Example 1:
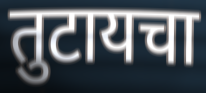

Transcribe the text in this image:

तुटायचा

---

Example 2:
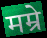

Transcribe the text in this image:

मम्रे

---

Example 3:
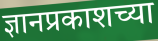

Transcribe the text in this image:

ज्ञानप्रकाशच्या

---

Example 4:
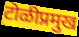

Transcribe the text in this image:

टोळीप्रमुख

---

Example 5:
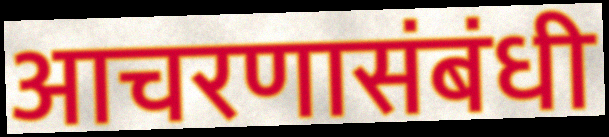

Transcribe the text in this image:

आचरणासंबंधी